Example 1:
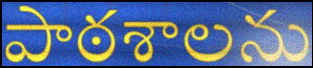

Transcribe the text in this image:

పాఠశాలను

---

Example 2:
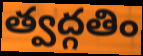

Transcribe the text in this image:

త్వద్గతిం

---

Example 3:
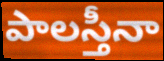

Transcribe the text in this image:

పాలస్తీనా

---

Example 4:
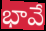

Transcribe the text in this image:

భావే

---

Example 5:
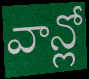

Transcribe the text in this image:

వాన్లో